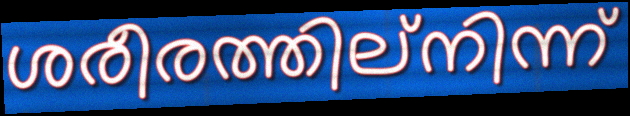
ശരീരത്തില്നിന്ന്